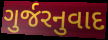
ગુર્જરનુવાદ